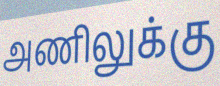
அணிலுக்கு